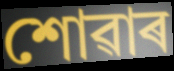
শোৱাৰ